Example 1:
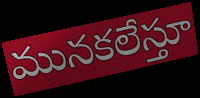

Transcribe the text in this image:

మునకలేస్తూ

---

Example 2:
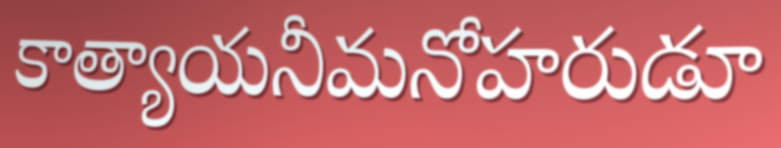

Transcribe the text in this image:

కాత్యాయనీమనోహరుడూ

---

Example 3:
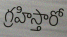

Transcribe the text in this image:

గ్రహిస్తారో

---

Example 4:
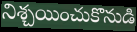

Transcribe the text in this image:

నిశ్చయించుకొనుడి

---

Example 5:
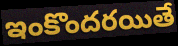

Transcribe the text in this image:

ఇంకొందరయితే